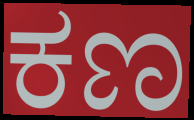
ಕಣ